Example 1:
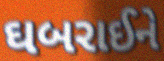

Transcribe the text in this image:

ઘબરાઈને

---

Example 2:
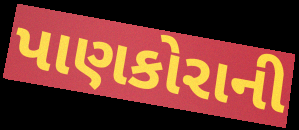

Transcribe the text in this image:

પાણકોરાની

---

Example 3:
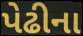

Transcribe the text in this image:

પેઢીના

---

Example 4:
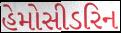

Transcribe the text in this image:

હેમોસીડરિન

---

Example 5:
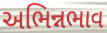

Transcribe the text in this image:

અભિન્નભાવ